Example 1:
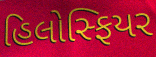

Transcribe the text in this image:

હિલોસ્ફિયર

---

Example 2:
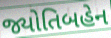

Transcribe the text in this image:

જ્યોતિબહેન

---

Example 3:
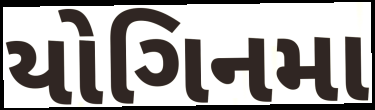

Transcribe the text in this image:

યોગિનમા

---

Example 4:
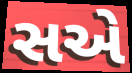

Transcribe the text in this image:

સએ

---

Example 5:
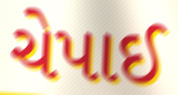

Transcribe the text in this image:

ચેપાઈ